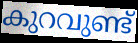
കുറവുണ്ട്